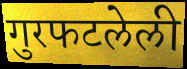
गुरफटलेली